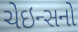
ચેઇન્સનો